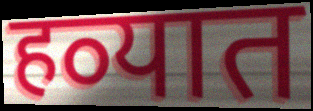
हव्‍यात